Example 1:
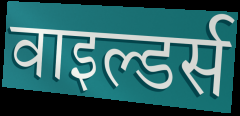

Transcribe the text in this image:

वाइल्डर्स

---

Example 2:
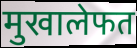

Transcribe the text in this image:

मुखालेफत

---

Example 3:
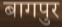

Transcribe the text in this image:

बागपुर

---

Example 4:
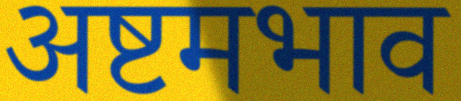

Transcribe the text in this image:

अष्टमभाव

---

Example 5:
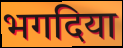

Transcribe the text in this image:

भगदिया